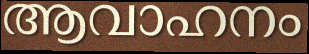
ആവാഹനം